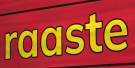
raaste